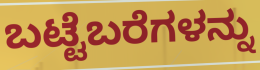
ಬಟ್ಟೆಬರೆಗಳನ್ನು